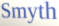
Smyth